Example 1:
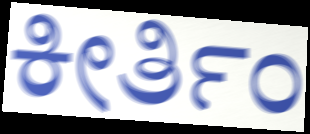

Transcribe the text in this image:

ಕೀರ್ತಿಂ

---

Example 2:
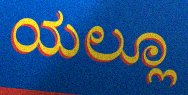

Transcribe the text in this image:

ಯಲ್ಲೂ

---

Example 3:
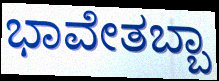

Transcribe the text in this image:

ಭಾವೇತಬ್ಬಾ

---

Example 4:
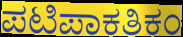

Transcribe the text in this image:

ಪಟಿಪಾಕತಿಕಂ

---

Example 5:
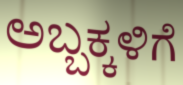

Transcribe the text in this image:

ಅಬ್ಬಕ್ಕಳಿಗೆ